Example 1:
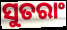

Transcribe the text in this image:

ସୁତରାଂ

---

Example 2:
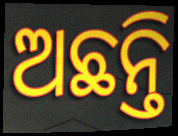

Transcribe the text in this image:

ଅଛନ୍ତି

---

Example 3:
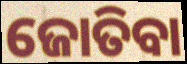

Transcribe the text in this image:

ଜୋତିବା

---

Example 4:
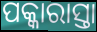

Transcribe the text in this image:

ପକ୍କାରାସ୍ତା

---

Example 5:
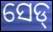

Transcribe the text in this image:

ସେଡ୍